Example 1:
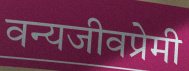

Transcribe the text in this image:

वन्यजीवप्रेमी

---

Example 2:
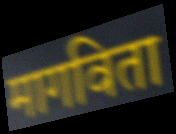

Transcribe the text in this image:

मागविता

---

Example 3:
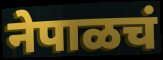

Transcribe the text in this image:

नेपाळचं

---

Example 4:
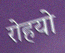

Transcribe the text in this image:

रोहयो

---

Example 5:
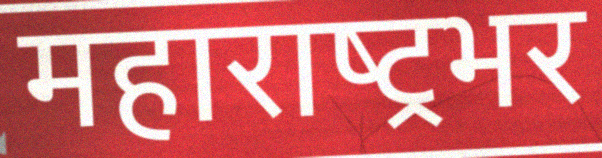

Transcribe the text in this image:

महाराष्ट्रभर